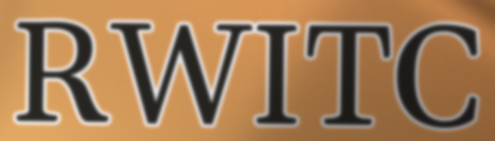
RWITC